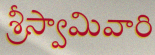
శ్రీస్వామివారి